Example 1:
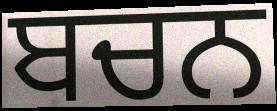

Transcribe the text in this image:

ਬਚਨ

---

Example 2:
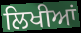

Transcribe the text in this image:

ਲਿਖੀਆਂ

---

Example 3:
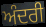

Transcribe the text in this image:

ਅੰਦਰੀ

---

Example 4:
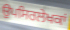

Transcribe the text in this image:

ਉਪਸਿਰਲੇਖਕਾਂ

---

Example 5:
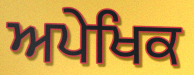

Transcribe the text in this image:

ਅਪੇਖਿਕ